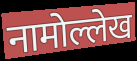
नामोल्लेख